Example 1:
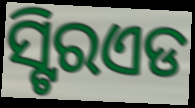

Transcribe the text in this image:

ସ୍ଟିରଏଡ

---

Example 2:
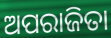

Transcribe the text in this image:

ଅପରାଜିତା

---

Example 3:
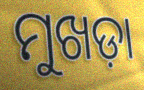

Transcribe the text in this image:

ମୁଖଡ଼ା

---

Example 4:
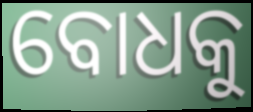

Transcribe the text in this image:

ବୋଧକୁ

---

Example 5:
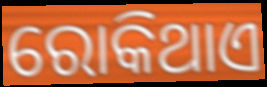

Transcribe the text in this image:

ରୋକିଥାଏ